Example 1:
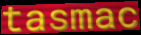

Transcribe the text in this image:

tasmac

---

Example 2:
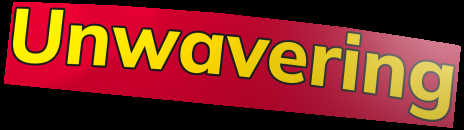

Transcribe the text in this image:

Unwavering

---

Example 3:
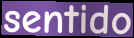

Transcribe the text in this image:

sentido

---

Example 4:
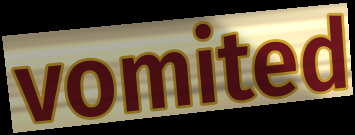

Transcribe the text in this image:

vomited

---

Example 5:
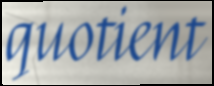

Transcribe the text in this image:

quotient